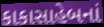
કાકાસાહેબનાં